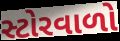
સ્ટોરવાળો